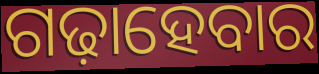
ଗଢ଼ାହେବାର